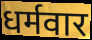
धर्मवार